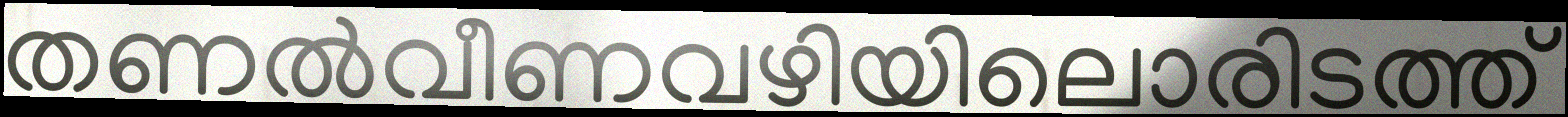
തണൽവീണവഴിയിലൊരിടത്ത്